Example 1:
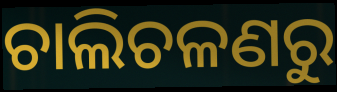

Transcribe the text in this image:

ଚାଲିଚଳଣରୁ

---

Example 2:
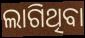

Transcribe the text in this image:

ଲାଗିଥିବା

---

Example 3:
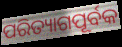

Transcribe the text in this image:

ପରିତ୍ୟାଗପୂର୍ବକ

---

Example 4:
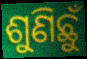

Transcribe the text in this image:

ଶୁଣିଛୁଁ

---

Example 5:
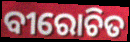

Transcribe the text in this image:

ବୀରୋଚିତ